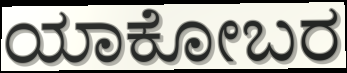
ಯಾಕೋಬರ